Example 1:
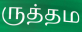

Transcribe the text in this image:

ருத்தம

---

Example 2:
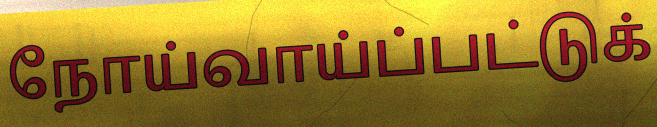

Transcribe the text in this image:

நோய்வாய்ப்பட்டுக்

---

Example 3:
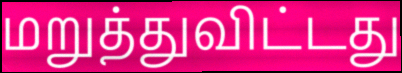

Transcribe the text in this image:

மறுத்துவிட்டது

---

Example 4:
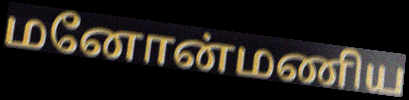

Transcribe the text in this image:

மனோன்மணிய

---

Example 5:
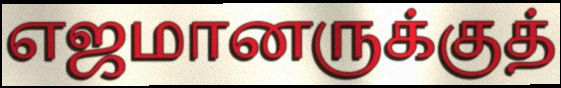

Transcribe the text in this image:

எஜமானருக்குத்